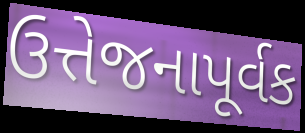
ઉત્તેજનાપૂર્વક